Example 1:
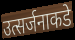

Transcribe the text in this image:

उत्सर्जनाकडे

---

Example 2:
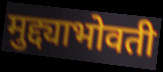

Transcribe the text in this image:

मुद्द्याभोवती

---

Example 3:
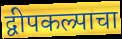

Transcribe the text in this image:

द्वीपकल्पाचा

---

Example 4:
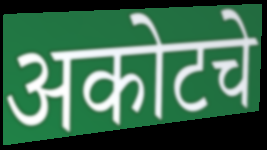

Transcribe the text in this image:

अकोटचे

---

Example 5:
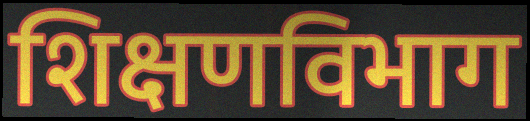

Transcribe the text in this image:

शिक्षणविभाग